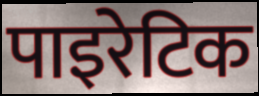
पाइरेटिक